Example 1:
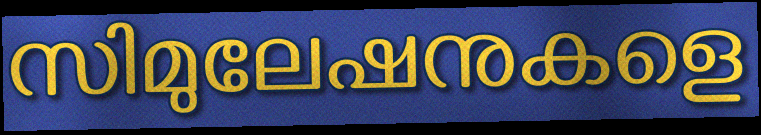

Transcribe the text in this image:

സിമുലേഷനുകളെ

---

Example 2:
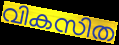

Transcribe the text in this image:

വികസിത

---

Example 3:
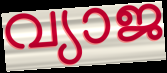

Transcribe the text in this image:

വ്യാജ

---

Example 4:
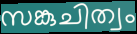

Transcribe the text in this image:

സങ്കുചിത്വം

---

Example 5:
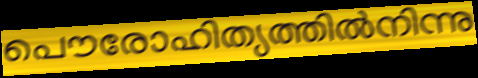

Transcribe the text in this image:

പൌരോഹിത്യത്തിൽനിന്നു